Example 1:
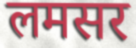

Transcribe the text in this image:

लमसर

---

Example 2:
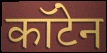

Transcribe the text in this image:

कॉटेन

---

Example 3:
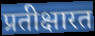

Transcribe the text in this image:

प्रतीक्षारत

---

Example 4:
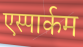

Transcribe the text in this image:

एस्पार्कम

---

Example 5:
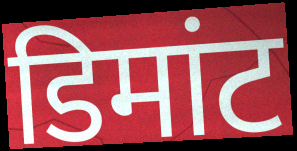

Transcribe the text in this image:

डिमांट